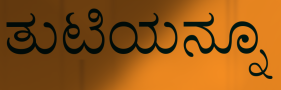
ತುಟಿಯನ್ನೂ